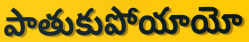
పాతుకుపోయాయో